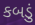
કબડું